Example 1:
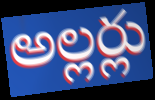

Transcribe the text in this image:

అల్లర్లు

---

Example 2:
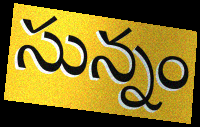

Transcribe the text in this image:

సున్నం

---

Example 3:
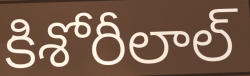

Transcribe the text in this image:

కిశోరీలాల్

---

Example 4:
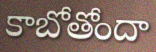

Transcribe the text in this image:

కాబోతోందా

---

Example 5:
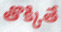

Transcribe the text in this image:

తొక్కితే